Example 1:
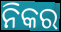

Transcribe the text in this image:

ନିକର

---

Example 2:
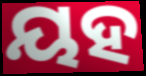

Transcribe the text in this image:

ୟହ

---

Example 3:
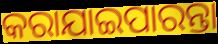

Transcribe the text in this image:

କରାଯାଇପାରନ୍ତା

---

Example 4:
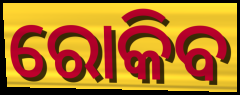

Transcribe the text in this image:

ରୋକିବ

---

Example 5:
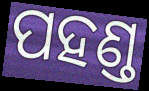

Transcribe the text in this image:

ପହଣ୍ଡ